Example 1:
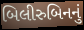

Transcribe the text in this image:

બિલીરુબિનનું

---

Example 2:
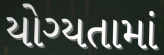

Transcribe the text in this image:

યોગ્યતામાં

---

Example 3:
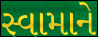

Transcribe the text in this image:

સ્વામાને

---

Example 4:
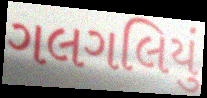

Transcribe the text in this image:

ગલગલિયું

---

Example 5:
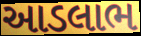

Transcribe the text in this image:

આડલાભ